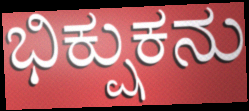
ಭಿಕ್ಷುಕನು